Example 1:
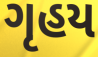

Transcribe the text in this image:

ગૃહય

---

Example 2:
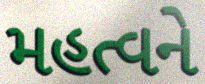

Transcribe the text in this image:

મહત્વને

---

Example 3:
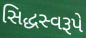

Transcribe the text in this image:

સિદ્ધસ્વરૂપે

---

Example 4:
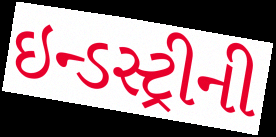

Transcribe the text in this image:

ઇન્ડસ્ટ્રીની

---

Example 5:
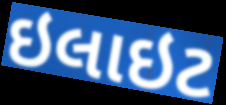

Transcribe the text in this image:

ઇલાઇટ